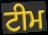
ਟੀਮ